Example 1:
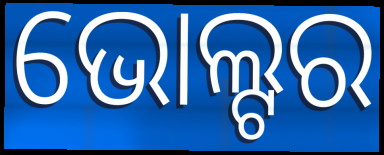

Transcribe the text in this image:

ଭୋଲ୍ଟର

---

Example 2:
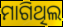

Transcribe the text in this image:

ମାଗିଥିଲ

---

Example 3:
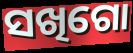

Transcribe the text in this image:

ସଖିଗୋ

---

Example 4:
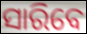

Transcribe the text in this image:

ସାରିବେ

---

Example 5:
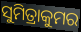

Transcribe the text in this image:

ସୁମିତ୍ରାକୁମର